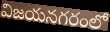
విజయనగరంలో